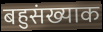
बहुसंख्याक